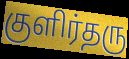
குளிர்தரு